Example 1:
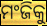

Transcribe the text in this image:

ମଂଜିକୁ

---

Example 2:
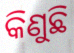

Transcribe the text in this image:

କିଣୁଛି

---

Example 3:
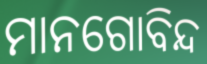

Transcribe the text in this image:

ମାନଗୋବିନ୍ଦ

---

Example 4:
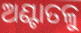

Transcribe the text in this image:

ଅଣ୍ଟାତଳୁ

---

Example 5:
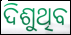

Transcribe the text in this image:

ଦିଶୁଥିବ